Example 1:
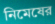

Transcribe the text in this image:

নিমেষের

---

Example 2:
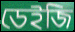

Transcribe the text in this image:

ডেইজি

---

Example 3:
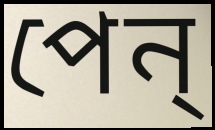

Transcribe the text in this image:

পেন্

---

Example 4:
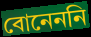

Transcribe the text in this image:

বোনেননি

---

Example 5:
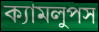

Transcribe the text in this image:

ক্যামলুপস